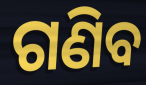
ଗଣିବ